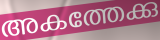
അകത്തേക്കു